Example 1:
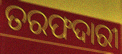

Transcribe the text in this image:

ତରଫଦାରୀ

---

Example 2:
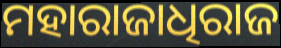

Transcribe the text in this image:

ମହାରାଜାଧିରାଜ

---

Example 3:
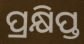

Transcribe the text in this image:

ପ୍ରକ୍ଷିପ୍ତ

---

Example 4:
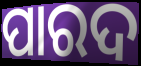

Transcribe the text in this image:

ପାରଦ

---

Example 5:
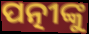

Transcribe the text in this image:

ପତ୍ନୀଙ୍କୁ